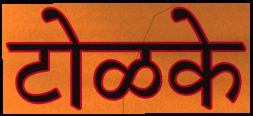
टोळके